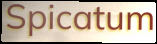
Spicatum